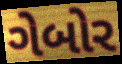
ગેબોર